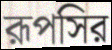
রূপসির